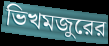
ভিখমজুরের